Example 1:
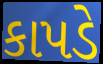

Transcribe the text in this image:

કાપડે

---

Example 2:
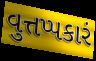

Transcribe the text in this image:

વુત્તપ્પકારં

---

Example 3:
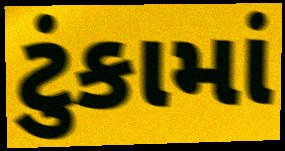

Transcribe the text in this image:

ટુંકામાં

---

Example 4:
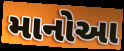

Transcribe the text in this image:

માનોઆ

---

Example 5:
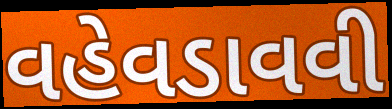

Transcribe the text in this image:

વહેવડાવવી